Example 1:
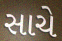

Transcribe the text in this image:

સાચે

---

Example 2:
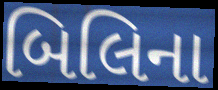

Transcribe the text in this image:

બિલિના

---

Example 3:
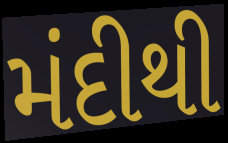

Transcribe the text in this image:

મંદીથી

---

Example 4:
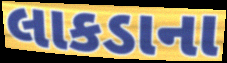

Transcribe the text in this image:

લાકડાના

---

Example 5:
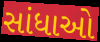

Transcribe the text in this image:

સાંધાઓ